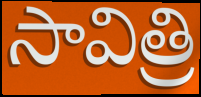
సావిత్రి